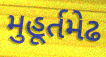
મુહૂર્તમેઢ